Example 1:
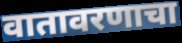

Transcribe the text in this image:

वातावरणाचा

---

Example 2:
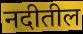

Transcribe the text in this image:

नदीतील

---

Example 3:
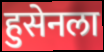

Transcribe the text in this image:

हुसेनला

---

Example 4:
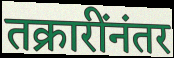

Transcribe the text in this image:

तक्रारींनंतर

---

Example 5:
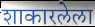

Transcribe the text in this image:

शाकारलेला